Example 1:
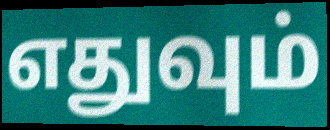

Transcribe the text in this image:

எதுவும்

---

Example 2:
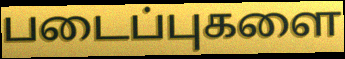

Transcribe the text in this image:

படைப்புகளை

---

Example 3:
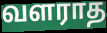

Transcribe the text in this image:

வளராத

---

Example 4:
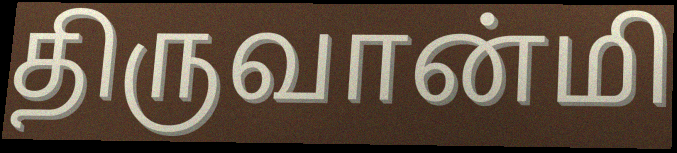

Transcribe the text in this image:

திருவான்மி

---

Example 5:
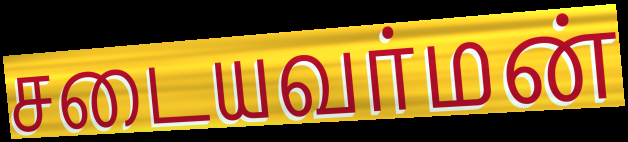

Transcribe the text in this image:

சடையவர்மன்